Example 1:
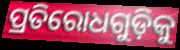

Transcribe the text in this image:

ପ୍ରତିରୋଧଗୁଡ଼ିକୁ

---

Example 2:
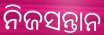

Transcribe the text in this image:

ନିଜସନ୍ତାନ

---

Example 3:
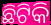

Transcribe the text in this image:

ଛିଟିକି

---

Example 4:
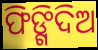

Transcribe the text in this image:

ଫିଙ୍ଗିଦିଅ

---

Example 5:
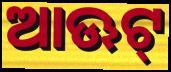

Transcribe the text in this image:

ଆଊଟ୍